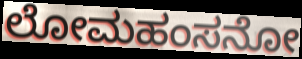
ಲೋಮಹಂಸನೋ